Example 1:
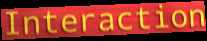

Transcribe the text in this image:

Interaction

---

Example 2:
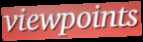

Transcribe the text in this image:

viewpoints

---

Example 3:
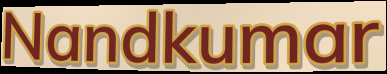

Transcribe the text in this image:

Nandkumar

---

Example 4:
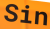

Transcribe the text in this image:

Sin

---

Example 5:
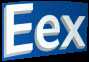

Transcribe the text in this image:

Eex